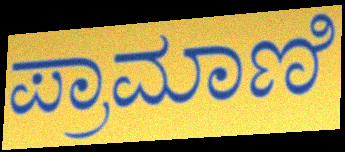
ಪ್ರಾಮಾಣಿ